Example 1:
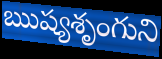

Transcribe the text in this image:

ఋష్యశృంగుని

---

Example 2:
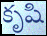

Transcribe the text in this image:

కృషి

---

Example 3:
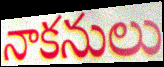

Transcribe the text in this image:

నాకనులు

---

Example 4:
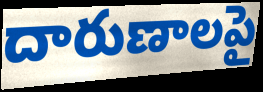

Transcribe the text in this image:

దారుణాలపై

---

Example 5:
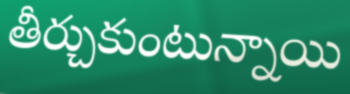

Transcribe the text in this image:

తీర్చుకుంటున్నాయి